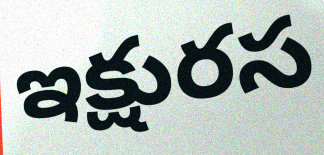
ఇక్షురస